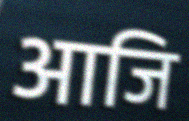
आजि